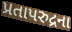
પ્રતાપરુદ્રના